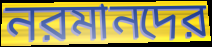
নরমানদের